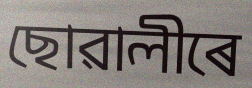
ছোৱালীৰে